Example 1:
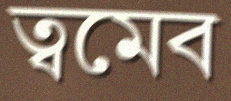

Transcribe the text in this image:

ত্বমেব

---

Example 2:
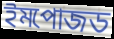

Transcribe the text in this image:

ইমপোজড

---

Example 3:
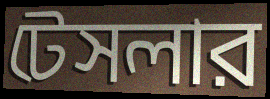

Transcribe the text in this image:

টেসলার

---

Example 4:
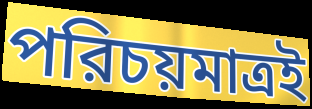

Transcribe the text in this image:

পরিচয়মাত্রই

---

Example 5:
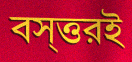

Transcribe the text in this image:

বস্ত্তরই